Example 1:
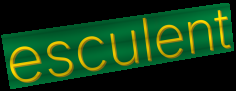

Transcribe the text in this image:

esculent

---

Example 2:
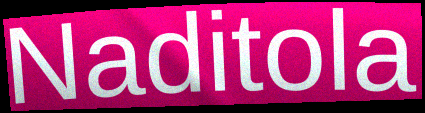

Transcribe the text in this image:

Naditola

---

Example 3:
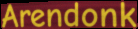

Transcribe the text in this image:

Arendonk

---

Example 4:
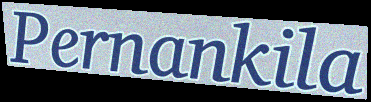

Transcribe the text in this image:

Pernankila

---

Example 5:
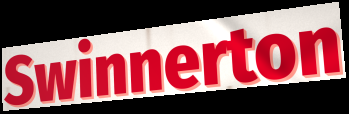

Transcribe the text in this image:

Swinnerton